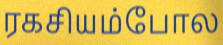
ரகசியம்போல